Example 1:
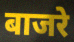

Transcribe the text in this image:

बाजरे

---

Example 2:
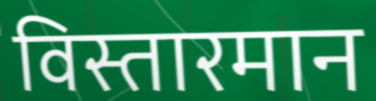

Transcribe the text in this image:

विस्तारमान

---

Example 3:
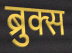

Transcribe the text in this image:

ब्रुक्‍स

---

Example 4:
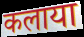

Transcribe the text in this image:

कलाया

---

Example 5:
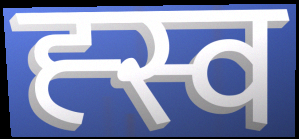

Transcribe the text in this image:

ह्स्व